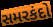
સમરકંદો